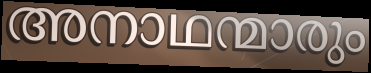
അനാഥന്മാരും